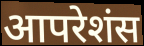
आपरेशंस